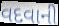
વદવાની